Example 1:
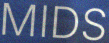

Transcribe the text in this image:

MIDS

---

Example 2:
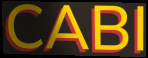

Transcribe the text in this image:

CABI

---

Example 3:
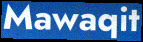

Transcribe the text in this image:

Mawaqit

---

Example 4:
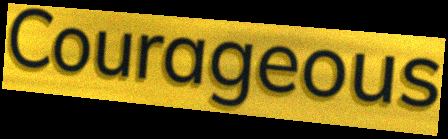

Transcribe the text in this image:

Courageous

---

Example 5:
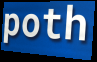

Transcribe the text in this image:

poth